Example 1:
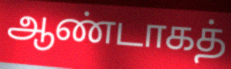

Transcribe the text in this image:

ஆண்டாகத்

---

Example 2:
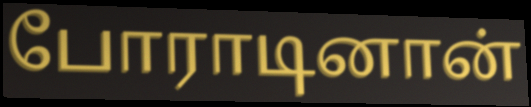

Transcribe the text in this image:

போராடினான்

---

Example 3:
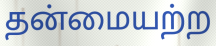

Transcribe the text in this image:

தன்மையற்ற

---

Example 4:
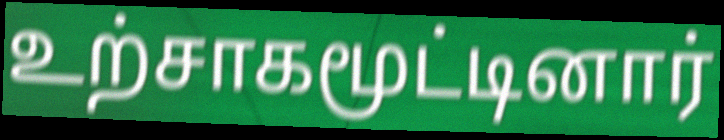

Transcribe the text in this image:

உற்சாகமூட்டினார்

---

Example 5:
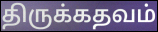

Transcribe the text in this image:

திருக்கதவம்